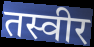
तस्‍वीर